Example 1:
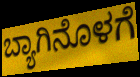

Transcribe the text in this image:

ಬ್ಯಾಗಿನೊಳಗೆ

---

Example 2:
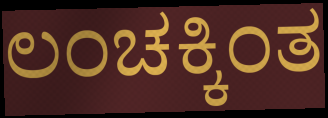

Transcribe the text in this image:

ಲಂಚಕ್ಕಿಂತ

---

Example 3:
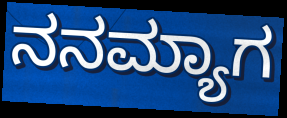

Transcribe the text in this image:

ನನಮ್ಯಾಗ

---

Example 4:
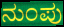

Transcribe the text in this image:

ನುಂಪು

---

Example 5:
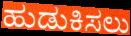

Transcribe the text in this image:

ಹುಡುಕಿಸಲು